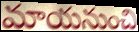
మాయనుంచి